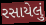
રસાયેલું